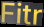
Fitr